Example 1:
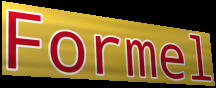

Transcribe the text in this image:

Formel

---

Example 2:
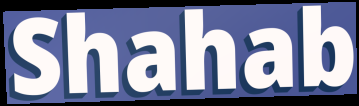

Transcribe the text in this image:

Shahab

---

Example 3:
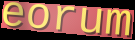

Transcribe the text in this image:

eorum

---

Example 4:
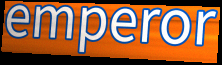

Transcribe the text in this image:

emperor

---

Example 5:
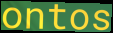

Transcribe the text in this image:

ontos